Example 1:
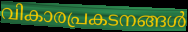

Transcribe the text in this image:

വികാരപ്രകടനങ്ങൾ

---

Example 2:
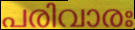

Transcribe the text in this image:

പരിവാരഃ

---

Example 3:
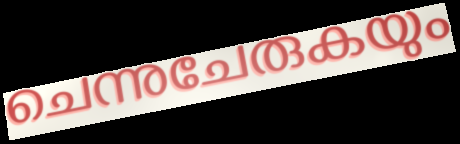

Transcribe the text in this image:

ചെന്നുചേരുകയും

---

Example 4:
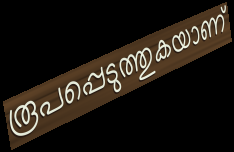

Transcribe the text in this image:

രൂപപ്പെടുത്തുകയാണ്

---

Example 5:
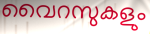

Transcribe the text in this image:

വൈറസുകളും